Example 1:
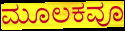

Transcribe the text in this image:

ಮೂಲಕವೂ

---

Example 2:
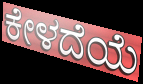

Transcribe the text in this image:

ಕೇಳದೆಯೆ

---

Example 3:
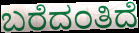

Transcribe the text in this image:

ಬರೆದಂತಿದೆ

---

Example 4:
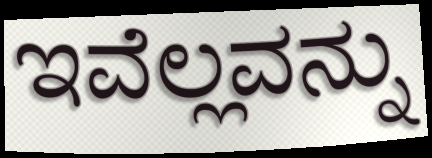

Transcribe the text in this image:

ಇವೆಲ್ಲವನ್ನು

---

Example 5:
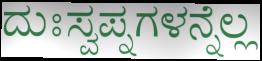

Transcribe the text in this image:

ದುಃಸ್ವಪ್ನಗಳನ್ನೆಲ್ಲ